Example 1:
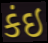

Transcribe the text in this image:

કંઇ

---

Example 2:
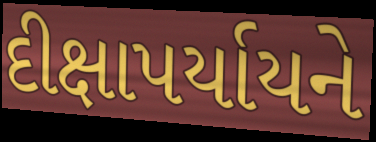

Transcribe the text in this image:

દીક્ષાપર્યાયને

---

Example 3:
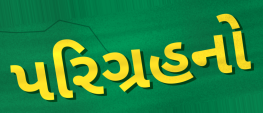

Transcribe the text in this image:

પરિગ્રહનો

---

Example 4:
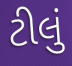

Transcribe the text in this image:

ટીલું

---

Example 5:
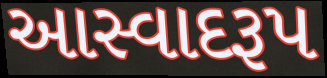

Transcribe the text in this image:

આસ્વાદરૂપ